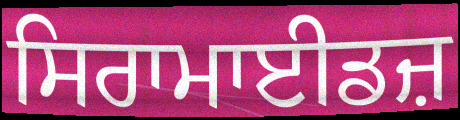
ਸਿਰਾਮਾਈਡਜ਼